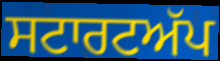
ਸਟਾਰਟਅੱਪ